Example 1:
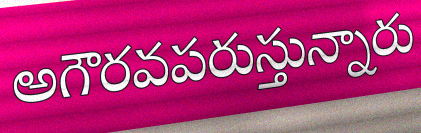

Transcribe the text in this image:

అగౌరవపరుస్తున్నారు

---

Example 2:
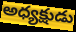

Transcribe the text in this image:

అధ్యక్షుడు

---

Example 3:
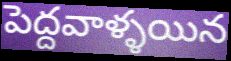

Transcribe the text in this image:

పెద్దవాళ్ళయిన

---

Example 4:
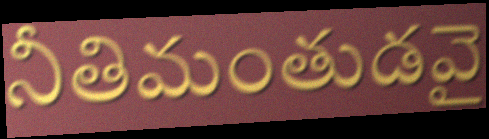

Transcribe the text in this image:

నీతిమంతుడవై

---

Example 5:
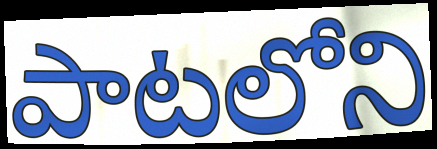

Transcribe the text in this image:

పాటలోని